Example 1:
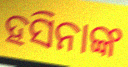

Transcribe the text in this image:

ହସିନାଙ୍କ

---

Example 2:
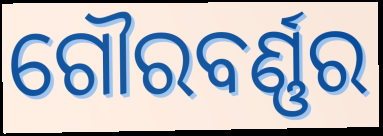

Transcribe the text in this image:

ଗୌରବର୍ଣ୍ଣର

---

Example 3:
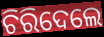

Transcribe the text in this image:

ଚିରିଦେଲେ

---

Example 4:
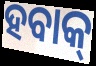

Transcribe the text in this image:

ହବାକ୍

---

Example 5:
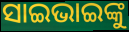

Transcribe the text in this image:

ସାଇଭାଇଙ୍କୁ